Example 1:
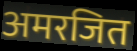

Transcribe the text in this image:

अमरजित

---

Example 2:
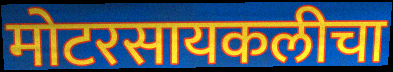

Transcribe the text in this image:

मोटरसायकलीचा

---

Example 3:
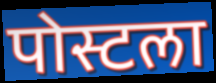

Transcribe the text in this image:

पोस्टला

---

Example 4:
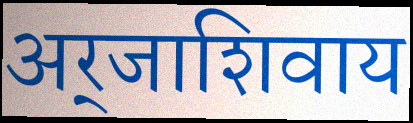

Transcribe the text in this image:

अर्जाशिवाय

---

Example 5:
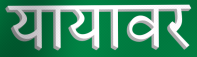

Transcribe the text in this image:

यायावर